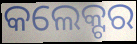
କଲେକ୍ଟର